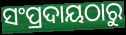
ସଂପ୍ରଦାୟଠାରୁ